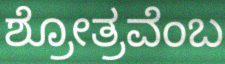
ಶ್ರೋತ್ರವೆಂಬ